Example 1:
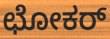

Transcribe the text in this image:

ಛೋಕರ್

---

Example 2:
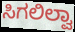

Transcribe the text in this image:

ಸಿಗಲಿಲ್ವಾ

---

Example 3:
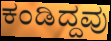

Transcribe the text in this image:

ಕಂಡಿದ್ದವು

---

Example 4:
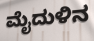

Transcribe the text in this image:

ಮೈದುಳಿನ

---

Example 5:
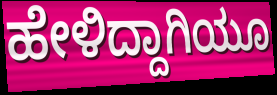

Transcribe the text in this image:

ಹೇಳಿದ್ದಾಗಿಯೂ